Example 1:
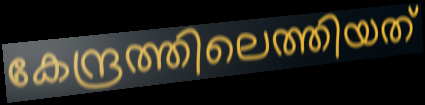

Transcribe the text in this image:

കേന്ദ്രത്തിലെത്തിയത്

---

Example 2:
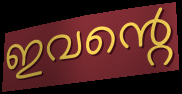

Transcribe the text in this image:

ഇവന്റെ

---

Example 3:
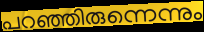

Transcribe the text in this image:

പറഞ്ഞിരുന്നെന്നും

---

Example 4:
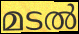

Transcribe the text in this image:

മടൽ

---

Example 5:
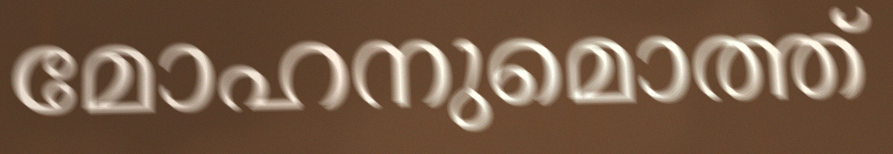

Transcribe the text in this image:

മോഹനുമൊത്ത്